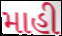
માહી